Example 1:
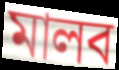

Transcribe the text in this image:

মালব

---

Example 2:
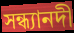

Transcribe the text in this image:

সন্ধ্যানদী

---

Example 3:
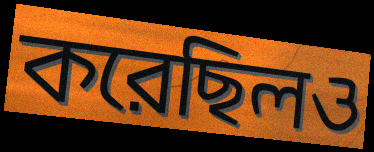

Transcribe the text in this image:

করেছিলও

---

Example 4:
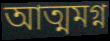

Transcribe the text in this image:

আত্মমগ্ন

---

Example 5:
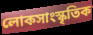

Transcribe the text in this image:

লোকসাংস্কৃতিক